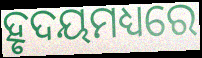
ହୃଦୟମଧ୍ୟରେ